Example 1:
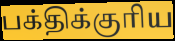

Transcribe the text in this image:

பக்திக்குரிய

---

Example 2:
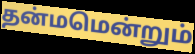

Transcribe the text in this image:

தன்மமென்றும்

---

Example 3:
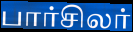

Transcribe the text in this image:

பார்சிலர்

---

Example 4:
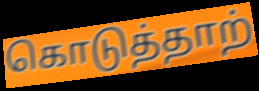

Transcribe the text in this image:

கொடுத்தாற்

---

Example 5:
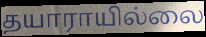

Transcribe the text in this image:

தயாராயில்லை